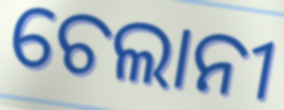
ଚେଲାନୀ